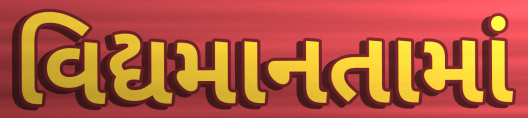
વિદ્યમાનતામાં